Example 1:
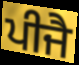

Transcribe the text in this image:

ਪੀਜੈ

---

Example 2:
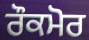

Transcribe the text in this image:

ਰੌਕਮੋਰ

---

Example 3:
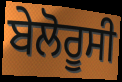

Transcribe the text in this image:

ਬੇਲੋਰੂਸੀ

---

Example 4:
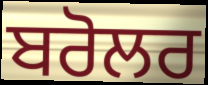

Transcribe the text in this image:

ਬਰੋਲਰ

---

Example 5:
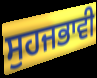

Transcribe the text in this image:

ਸੁਹਜਭਾਵੀ